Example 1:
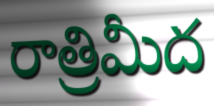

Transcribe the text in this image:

రాత్రిమీద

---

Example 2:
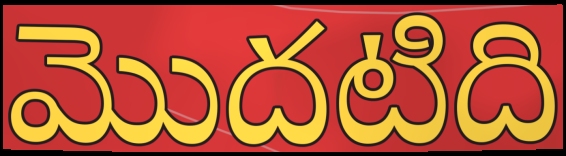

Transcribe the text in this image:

మొదటిది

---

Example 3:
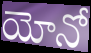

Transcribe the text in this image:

యోనో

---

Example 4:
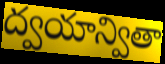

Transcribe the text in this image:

ద్వయాన్వితా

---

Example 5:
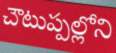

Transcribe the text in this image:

చౌటుప్పల్లోని